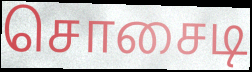
சொசைடி